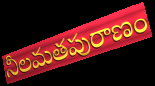
నీలమతపురాణం